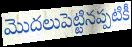
మొదలుపెట్టినప్పటికీ